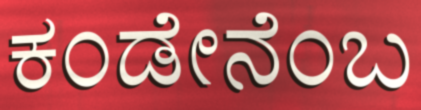
ಕಂಡೇನೆಂಬ